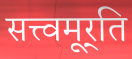
सत्त्वमूर्ति